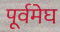
पूर्वमेघ